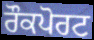
ਰੌਕਪੋਰਟ